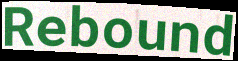
Rebound